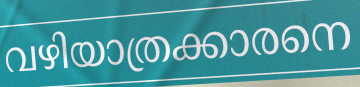
വഴിയാത്രക്കാരനെ